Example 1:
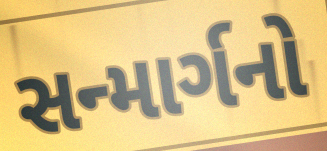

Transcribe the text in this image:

સન્માર્ગનો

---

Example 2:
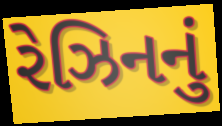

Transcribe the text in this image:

રેઝિનનું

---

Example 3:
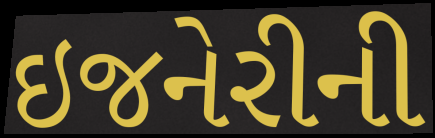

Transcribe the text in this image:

ઇજનેરીની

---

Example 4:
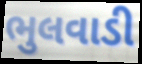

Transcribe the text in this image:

ભુલવાડી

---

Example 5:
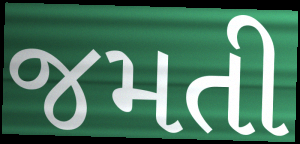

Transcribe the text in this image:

જમતી